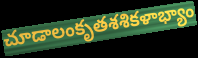
చూడాలంకృతశశికళాభ్యాం